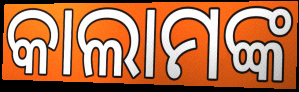
କାଲାମଙ୍କ